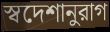
স্বদেশানুরাগ